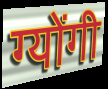
ग्योंगी